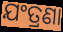
ଯଂତ୍ରଣା